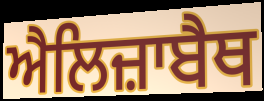
ਐਲਿਜ਼ਾਬੈਥ